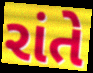
રાંતે